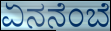
ಏನನೆಂಬೆ